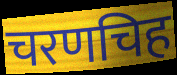
चरणचिह